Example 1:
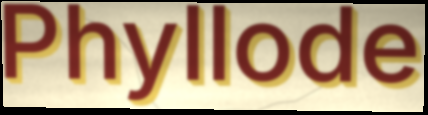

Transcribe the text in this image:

Phyllode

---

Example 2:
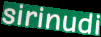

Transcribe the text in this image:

sirinudi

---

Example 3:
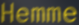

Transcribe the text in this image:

Hemme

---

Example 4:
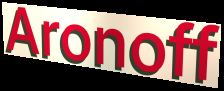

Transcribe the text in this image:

Aronoff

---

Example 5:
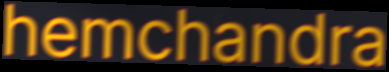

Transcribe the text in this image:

hemchandra